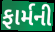
ફાર્મની